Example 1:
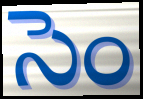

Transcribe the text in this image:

సెం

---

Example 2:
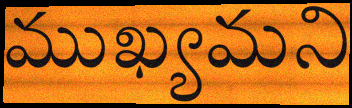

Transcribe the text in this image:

ముఖ్యమని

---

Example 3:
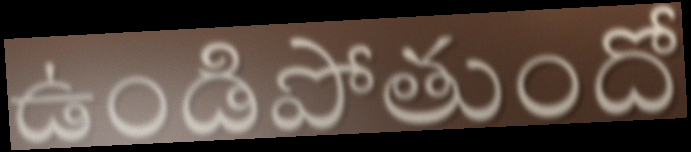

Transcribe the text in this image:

ఉండిపోతుందో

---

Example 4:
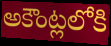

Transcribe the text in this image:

అకౌంట్లలోకి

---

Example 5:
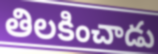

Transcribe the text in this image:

తిలకించాడు